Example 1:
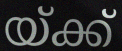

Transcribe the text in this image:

യ്ക്ക്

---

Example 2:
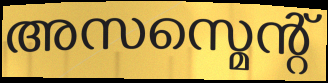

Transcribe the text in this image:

അസസ്മെന്റ്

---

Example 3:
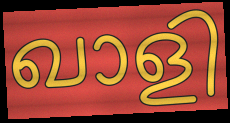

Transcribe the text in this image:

ഖാളി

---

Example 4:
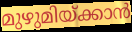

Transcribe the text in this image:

മുഴുമിയ്ക്കാൻ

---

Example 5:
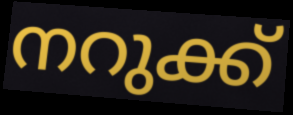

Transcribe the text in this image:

നറുക്ക്